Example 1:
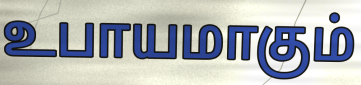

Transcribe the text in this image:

உபாயமாகும்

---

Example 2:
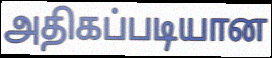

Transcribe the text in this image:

அதிகப்படியான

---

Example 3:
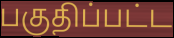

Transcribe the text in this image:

பகுதிப்பட்ட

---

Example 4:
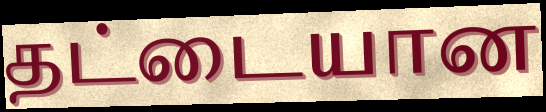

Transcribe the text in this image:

தட்டையான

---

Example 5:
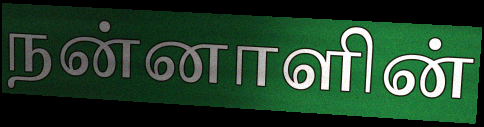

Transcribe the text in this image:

நன்னாளின்